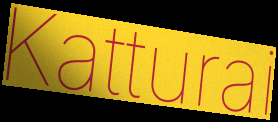
Katturai